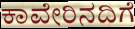
ಕಾವೇರಿನದಿಗೆ